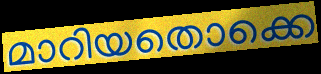
മാറിയതൊക്കെ